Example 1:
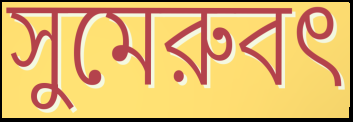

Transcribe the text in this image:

সুমেরুবৎ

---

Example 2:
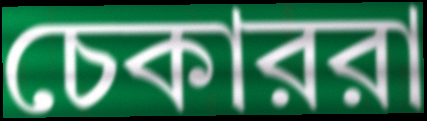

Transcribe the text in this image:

চেকাররা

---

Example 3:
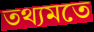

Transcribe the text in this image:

তথ্যমতে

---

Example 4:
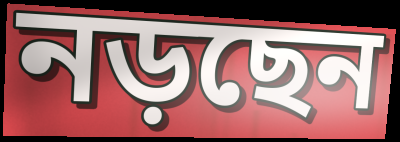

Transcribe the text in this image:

নড়ছেন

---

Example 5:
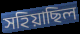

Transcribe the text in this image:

সহিয়াছিল